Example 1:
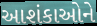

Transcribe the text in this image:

આશંકાઓને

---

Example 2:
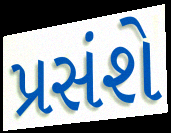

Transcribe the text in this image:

પ્રસંશે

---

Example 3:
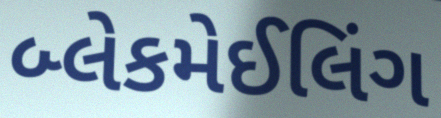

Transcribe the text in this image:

બ્લેકમેઈલિંગ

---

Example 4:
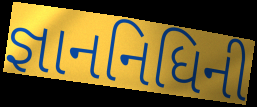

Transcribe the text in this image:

જ્ઞાનનિધિની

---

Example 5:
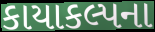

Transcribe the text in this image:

કાયાકલ્પના